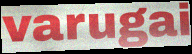
varugai